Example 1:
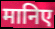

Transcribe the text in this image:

मानिए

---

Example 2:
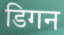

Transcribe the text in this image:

डिगन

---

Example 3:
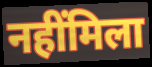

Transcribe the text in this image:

नहींमिला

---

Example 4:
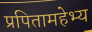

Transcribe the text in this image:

प्रपितामहेभ्य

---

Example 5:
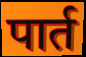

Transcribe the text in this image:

पार्त